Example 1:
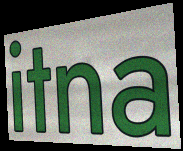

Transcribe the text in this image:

itna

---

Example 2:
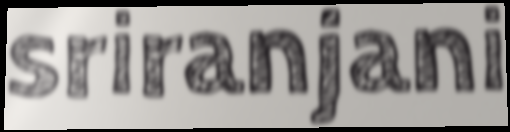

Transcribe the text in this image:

sriranjani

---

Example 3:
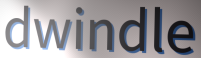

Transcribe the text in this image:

dwindle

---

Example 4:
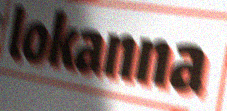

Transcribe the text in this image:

lokanna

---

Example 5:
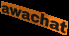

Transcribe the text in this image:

awachat